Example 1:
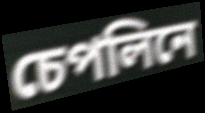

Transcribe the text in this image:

চেপলিনে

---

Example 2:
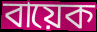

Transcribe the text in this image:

বায়েক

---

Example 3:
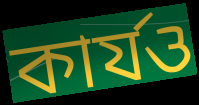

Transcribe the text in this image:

কাৰ্যও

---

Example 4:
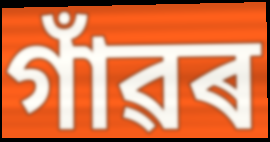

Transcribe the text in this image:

গাঁৱৰ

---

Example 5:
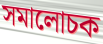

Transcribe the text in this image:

সমালোচক